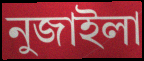
নুজাইলা